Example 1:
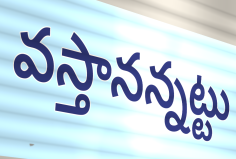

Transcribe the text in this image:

వస్తానన్నట్టు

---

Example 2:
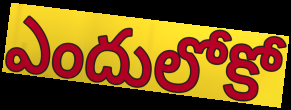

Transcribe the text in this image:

ఎందులోకో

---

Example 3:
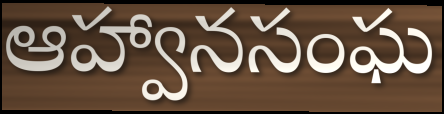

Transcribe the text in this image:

ఆహ్వానసంఘ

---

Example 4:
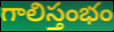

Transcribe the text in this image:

గాలిస్తంభం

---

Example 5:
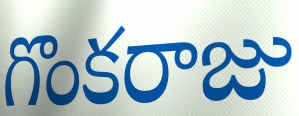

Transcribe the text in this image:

గొంకరాజు